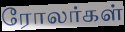
ரோலர்கள்